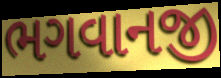
ભગવાનજી